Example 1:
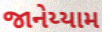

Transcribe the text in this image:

જાનેય્યામ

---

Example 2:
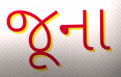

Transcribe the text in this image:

જૂના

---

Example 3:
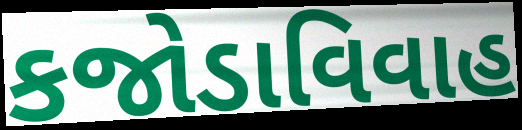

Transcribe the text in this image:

કજોડાવિવાહ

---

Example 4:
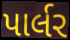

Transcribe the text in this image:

પાર્લર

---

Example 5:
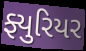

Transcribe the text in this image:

ફ્યુરિયર